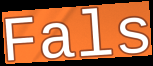
Fals